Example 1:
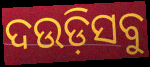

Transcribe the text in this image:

ଦଉଡ଼ିସବୁ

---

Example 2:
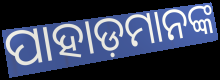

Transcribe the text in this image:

ପାହାଡ଼ମାନଙ୍କ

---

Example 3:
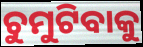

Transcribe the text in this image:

ଚୁମୁଟିବାକୁ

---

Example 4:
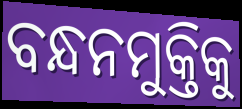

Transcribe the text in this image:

ବନ୍ଧନମୁକ୍ତିକୁ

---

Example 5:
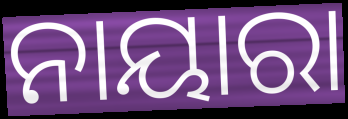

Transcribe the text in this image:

ନାୟାରା